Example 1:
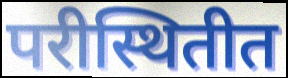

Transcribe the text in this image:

परीस्थितीत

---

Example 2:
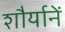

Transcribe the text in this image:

शौर्यानें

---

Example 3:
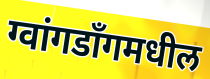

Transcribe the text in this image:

ग्वांगडाँगमधील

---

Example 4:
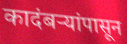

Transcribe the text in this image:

कादंबऱ्यांपासून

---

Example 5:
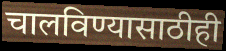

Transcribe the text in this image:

चालविण्यासाठीही